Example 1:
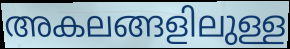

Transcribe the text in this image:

അകലങ്ങളിലുള്ള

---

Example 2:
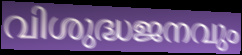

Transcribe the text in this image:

വിശുദ്ധജനവും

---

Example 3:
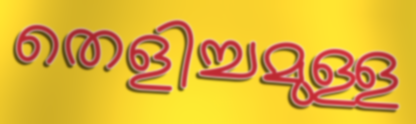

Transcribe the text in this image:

തെളിച്ചമുള്ള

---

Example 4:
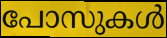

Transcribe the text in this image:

പോസുകൾ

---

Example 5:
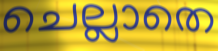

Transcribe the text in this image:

ചെല്ലാതെ